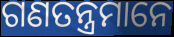
ଗଣତନ୍ତ୍ରମାନେ